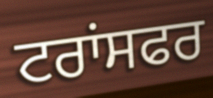
ਟਰਾਂਸਫਰ